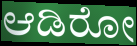
ಆಡಿರೋ